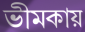
ভীমকায়